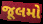
જૂલમો